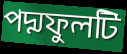
পদ্মফুলটি